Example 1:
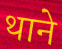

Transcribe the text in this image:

थाने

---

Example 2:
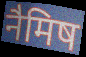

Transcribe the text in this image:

नैमिष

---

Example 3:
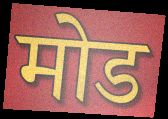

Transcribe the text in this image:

मोड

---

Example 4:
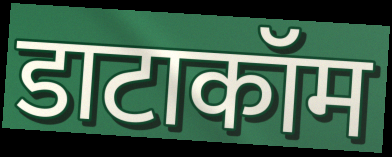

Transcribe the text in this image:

डाटाकॉम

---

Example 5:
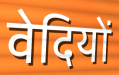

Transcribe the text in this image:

वेदियों